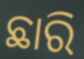
ଛାରି